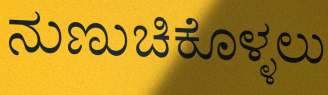
ನುಣುಚಿಕೊಳ್ಳಲು